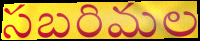
సబరిమల